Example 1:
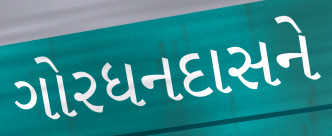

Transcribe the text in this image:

ગોરધનદાસને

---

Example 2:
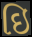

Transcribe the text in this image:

ઇિ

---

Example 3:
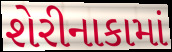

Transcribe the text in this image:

શેરીનાકામાં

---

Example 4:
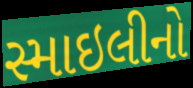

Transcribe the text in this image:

સ્માઇલીનો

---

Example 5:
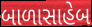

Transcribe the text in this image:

બાળાસાહેબ